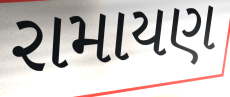
રામાયણ